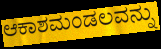
ಆಕಾಶಮಂಡಲವನ್ನು